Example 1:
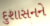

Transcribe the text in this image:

દુશાસનને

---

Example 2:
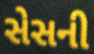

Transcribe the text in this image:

સેસની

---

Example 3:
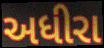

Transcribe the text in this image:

અધીરા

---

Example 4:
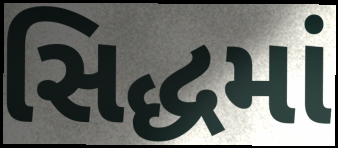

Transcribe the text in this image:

સિદ્ધમાં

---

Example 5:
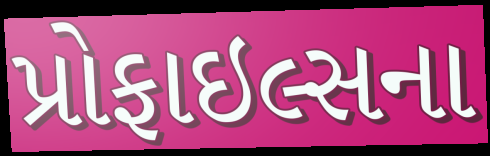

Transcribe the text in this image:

પ્રોફાઇલ્સના